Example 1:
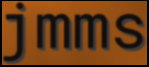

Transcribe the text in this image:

jmms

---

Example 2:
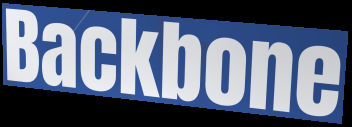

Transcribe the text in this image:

Backbone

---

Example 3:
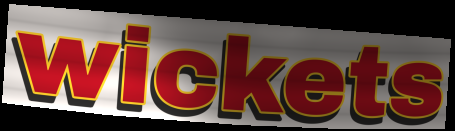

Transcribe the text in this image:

wickets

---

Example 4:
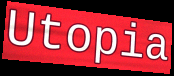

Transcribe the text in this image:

Utopia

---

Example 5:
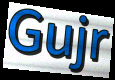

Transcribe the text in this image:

Gujr